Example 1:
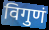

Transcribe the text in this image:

विगुणं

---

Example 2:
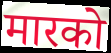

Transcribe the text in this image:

मारको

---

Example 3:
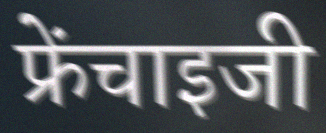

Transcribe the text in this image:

फ्रेंचाइजी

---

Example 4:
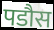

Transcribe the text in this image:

पडौस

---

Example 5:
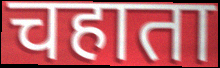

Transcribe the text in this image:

चहाता